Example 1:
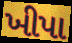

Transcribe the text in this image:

ખીપા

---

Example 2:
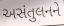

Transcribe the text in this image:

અસંતુલનને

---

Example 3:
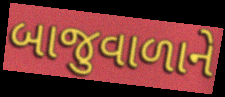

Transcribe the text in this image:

બાજુવાળાને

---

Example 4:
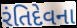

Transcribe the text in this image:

રંતિદેવના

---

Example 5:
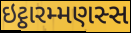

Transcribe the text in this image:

ઇટ્ઠારમ્મણસ્સ